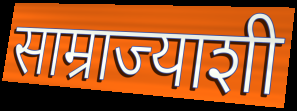
साम्राज्याशी